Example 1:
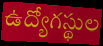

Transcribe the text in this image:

ఉద్యోగస్థుల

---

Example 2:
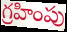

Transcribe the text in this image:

గ్రహింపు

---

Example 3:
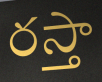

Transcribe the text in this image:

రస్తా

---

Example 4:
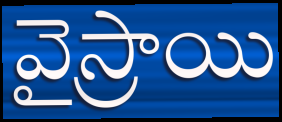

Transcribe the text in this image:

వైస్రాయి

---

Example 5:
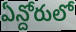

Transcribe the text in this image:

ఏన్దోరులో